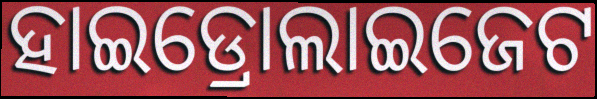
ହାଇଡ୍ରୋଲାଇଜେଟ